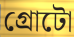
গ্রোটো